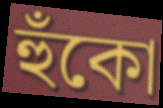
হুঁকো